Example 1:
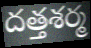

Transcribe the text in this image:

దత్తశర్మ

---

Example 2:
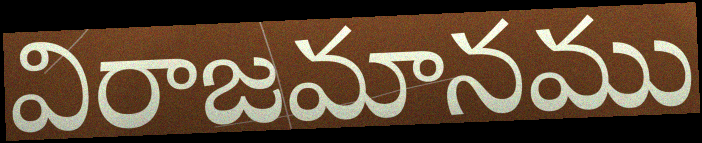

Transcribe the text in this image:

విరాజమానము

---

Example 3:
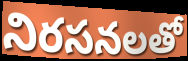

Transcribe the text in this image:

నిరసనలతో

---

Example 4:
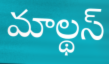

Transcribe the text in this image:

మాల్థస్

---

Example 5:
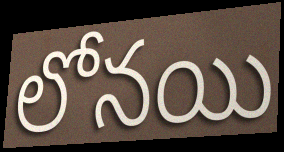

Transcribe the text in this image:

లోనయి